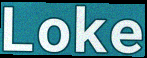
Loke